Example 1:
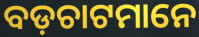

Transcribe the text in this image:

ବଡ଼ଚାଟମାନେ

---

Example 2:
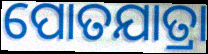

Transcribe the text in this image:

ପୋତଯାତ୍ରା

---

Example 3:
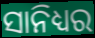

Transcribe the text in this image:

ସାନିଧ୍ୟର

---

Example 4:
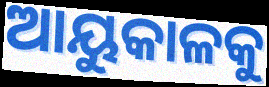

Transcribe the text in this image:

ଆୟୁକାଳକୁ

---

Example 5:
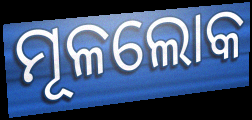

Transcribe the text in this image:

ମୂଳଲୋକ